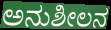
ಅನುಶೀಲನ